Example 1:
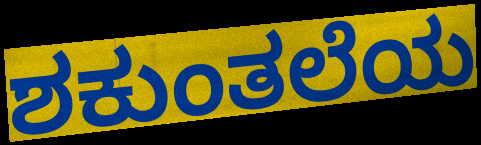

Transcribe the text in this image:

ಶಕುಂತಲೆಯ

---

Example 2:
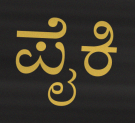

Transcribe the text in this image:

ಪೈಕಿ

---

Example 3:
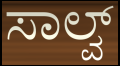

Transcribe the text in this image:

ಸಾಲ್ವ್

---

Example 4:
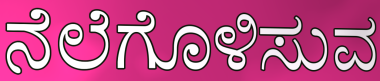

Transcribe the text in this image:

ನೆಲೆಗೊಳಿಸುವ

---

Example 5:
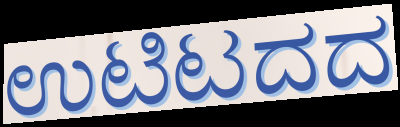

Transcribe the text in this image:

ಉಟಿಟದದ